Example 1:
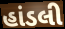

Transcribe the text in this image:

હાંડલી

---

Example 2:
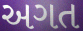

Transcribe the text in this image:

અગત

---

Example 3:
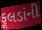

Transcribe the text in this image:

ફૂલડાંની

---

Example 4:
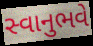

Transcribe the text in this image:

સ્વાનુભવે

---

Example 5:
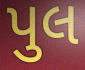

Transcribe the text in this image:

પુલ